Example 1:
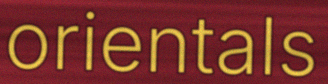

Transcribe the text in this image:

orientals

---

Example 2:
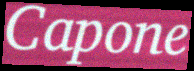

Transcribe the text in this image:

Capone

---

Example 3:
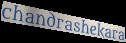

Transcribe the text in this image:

chandrashekara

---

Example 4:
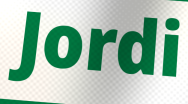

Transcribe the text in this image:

Jordi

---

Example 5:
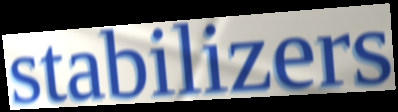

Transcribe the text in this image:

stabilizers